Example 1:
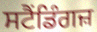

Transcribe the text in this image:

ਸਟੈਂਡਿੰਗਜ਼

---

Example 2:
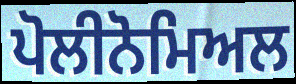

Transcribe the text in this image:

ਪੋਲੀਨੋਮਿਅਲ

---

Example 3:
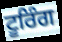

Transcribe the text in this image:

ਟੂਰਿੰਗ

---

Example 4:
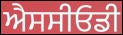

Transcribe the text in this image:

ਐਸਸੀਓਡੀ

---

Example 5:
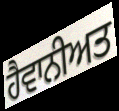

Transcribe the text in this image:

ਹੈਵਾਨੀਅਤ